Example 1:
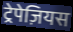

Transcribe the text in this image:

ट्रेपेज़ियस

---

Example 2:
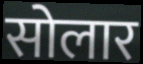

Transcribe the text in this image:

सोलार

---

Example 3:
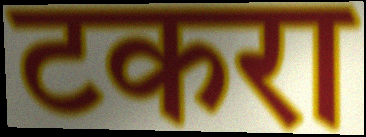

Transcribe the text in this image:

टकरा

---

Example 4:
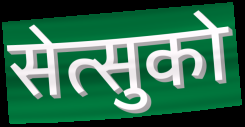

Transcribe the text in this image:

सेत्सुको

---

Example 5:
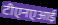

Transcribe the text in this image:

टीएनएआई